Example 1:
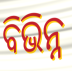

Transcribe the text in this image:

ବିଭିନ୍ନ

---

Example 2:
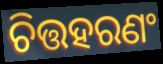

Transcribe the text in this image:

ଚିତ୍ତହରଣଂ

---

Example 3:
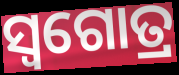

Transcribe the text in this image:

ସ୍ୱଗୋତ୍ର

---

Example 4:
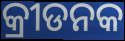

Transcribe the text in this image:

କ୍ରୀଡନକ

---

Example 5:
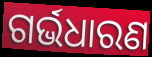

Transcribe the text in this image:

ଗର୍ଭଧାରଣ